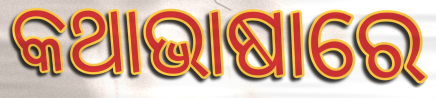
କଥାଭାଷାରେ